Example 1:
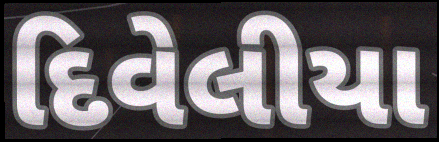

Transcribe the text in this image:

દિવેલીયા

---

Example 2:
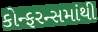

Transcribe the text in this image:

કોન્ફરન્સમાંથી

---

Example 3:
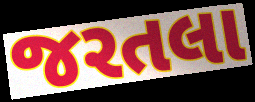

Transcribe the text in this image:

જરતલા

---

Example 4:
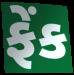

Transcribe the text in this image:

ફેંક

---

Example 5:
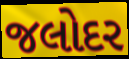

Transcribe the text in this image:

જલોદર